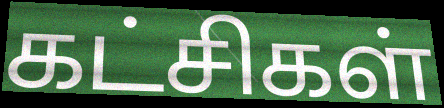
கட்சிகள்